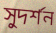
সুদর্শন